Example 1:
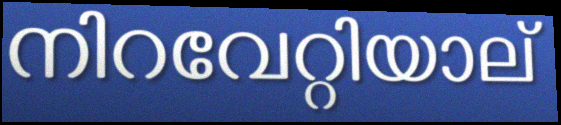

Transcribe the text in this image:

നിറവേറ്റിയാല്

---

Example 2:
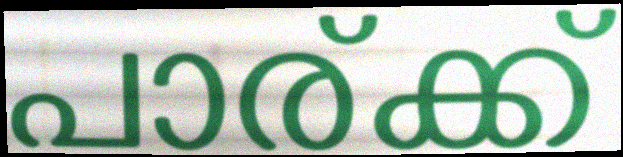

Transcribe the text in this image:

പാര്ക്ക്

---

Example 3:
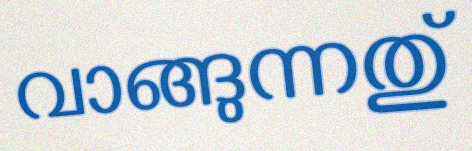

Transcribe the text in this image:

വാങ്ങുന്നതു്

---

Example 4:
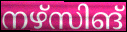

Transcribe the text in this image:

നഴ്സിങ്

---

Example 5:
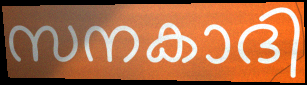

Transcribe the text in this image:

സനകാദി